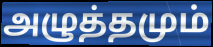
அழுத்தமும்